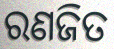
ରଣଜିତ